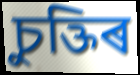
চুক্তিৰ